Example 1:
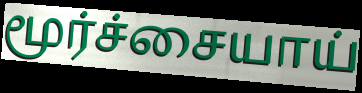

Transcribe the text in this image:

மூர்ச்சையாய்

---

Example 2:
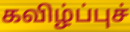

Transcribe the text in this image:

கவிழ்ப்புச்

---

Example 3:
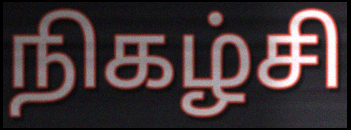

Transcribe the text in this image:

நிகழ்சி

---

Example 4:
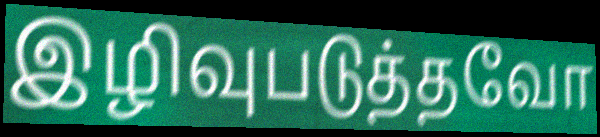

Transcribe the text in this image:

இழிவுபடுத்தவோ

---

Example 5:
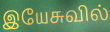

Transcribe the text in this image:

இயேசுவில்